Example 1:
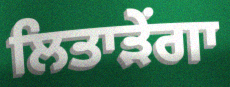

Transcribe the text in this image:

ਲਿਤਾੜੇਂਗਾ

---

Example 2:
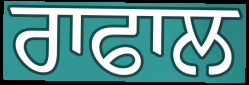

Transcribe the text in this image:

ਰਾਫਾਲ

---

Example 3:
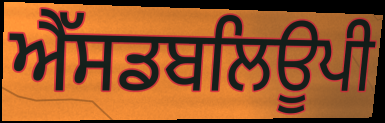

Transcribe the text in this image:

ਐੱਸਡਬਲਿਊਪੀ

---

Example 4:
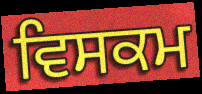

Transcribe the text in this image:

ਵਿਸਕਮ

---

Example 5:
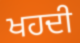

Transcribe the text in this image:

ਖਹਦੀ